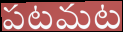
పటమట